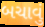
બચાવું